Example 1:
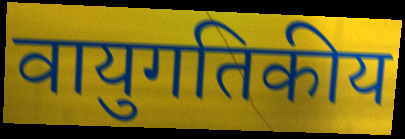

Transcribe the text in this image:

वायुगतिकीय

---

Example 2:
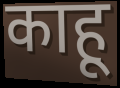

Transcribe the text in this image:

काहू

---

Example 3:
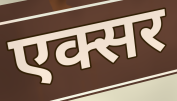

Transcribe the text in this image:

एक्सर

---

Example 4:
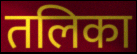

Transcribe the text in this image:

तलिका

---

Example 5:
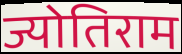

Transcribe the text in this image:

ज्योतिराम